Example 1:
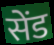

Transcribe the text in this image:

सेंड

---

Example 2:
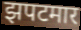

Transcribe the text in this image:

झपटमार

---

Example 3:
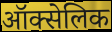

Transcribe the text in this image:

ऑक्सेलिक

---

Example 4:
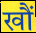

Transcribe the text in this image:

खौं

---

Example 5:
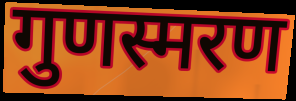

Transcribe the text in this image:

गुणस्मरण